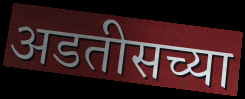
अडतीसच्या